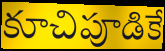
కూచిపూడికే